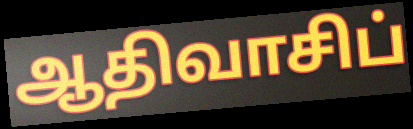
ஆதிவாசிப்